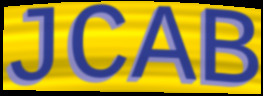
JCAB